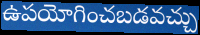
ఉపయోగించబడవచ్చు